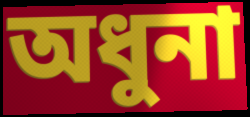
অধুনা